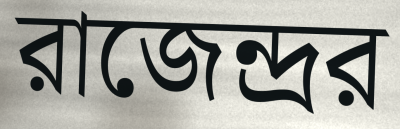
রাজেন্দ্রর